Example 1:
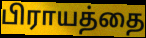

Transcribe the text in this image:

பிராயத்தை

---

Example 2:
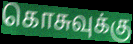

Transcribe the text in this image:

கொசுவுக்கு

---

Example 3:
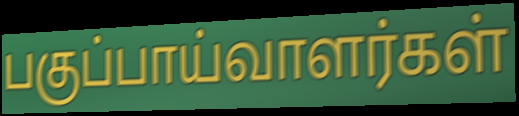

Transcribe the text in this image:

பகுப்பாய்வாளர்கள்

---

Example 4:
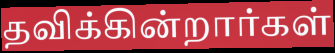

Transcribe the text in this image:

தவிக்கின்றார்கள்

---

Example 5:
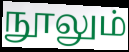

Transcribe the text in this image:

நூலும்